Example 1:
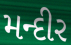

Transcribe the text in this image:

મન્દીર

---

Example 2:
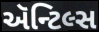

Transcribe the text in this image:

ઍન્ટિલ્સ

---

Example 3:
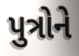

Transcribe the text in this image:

પુત્રોને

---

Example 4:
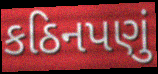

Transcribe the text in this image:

કઠિનપણું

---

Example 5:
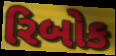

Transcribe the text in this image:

રિબોક